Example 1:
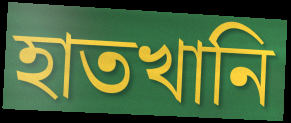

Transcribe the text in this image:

হাতখানি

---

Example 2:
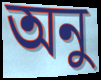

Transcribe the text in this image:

অনু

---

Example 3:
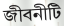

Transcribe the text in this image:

জীবনীটি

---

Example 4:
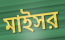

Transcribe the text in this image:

মাইসর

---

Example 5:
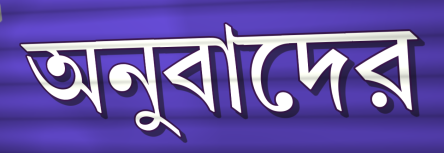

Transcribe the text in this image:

অনুবাদের